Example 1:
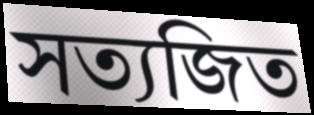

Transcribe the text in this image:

সত্যজিত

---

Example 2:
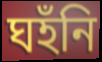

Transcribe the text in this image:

ঘহঁনি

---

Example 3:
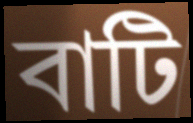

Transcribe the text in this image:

বাটি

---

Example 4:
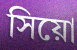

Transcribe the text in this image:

সিয়ো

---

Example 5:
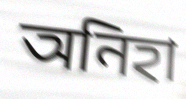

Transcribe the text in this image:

অনিহা